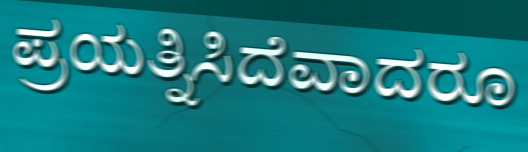
ಪ್ರಯತ್ನಿಸಿದೆವಾದರೂ